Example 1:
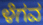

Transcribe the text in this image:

ಳೆಗವ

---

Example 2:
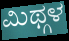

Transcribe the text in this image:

ಮಿಥ್ಗಳ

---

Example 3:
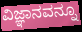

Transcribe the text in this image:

ವಿಜ್ಞಾನವನ್ನೂ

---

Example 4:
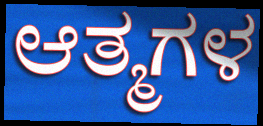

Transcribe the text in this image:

ಆತ್ಮಗಳ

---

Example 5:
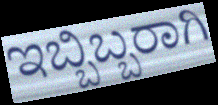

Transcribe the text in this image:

ಇಬ್ಬಿಬ್ಬರಾಗಿ